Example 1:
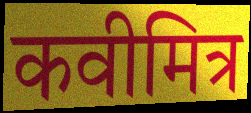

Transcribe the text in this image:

कवीमित्र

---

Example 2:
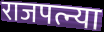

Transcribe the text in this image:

राजपत्न्या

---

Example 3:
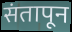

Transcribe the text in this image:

संतापून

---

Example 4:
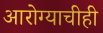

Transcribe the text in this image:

आरोग्याचीही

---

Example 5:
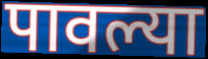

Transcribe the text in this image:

पावल्या